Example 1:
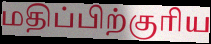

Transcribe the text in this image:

மதிப்பிற்குரிய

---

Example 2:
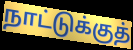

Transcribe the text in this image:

நாட்டுக்குத்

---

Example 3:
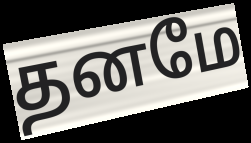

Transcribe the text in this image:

தனமே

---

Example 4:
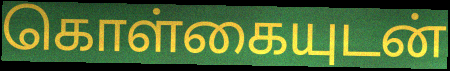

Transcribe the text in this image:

கொள்கையுடன்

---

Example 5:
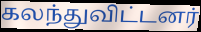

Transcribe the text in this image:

கலந்துவிட்டனர்